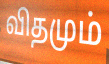
விதமும்